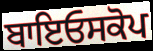
ਬਾਇਓਸਕੋਪ